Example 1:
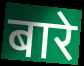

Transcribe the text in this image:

बारे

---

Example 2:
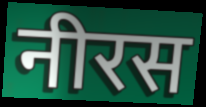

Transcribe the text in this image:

नीरस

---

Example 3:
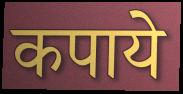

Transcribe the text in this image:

कपाये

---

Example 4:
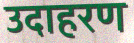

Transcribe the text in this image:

उदाहरण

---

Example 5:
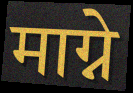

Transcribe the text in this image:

माग्ने